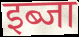
इब्जा